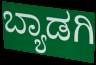
ಬ್ಯಾಡಗಿ